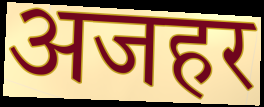
अजहर